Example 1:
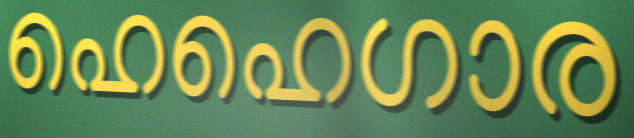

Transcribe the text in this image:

ഹെഹെഗാര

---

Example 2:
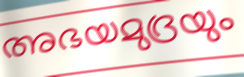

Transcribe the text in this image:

അഭയമുദ്രയും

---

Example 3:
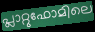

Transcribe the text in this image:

പ്ലാറ്റുഫോമിലെ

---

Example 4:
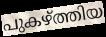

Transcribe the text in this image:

പുകഴ്ത്തിയ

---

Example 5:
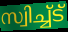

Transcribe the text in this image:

സ്വിച്ച്ട്